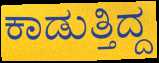
ಕಾಡುತ್ತಿದ್ದ